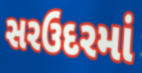
સરઉદરમાં